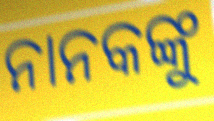
ନାନକଙ୍କୁ